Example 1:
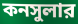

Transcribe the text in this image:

কনসুলার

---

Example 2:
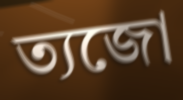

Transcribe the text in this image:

ত্যজো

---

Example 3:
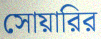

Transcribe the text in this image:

সোয়ারির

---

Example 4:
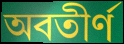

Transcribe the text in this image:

অবতীর্ণ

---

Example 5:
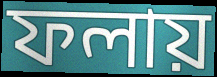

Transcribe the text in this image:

ফলায়